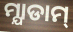
ମ୍ଯାଡାମ୍